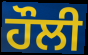
ਹੌਲੀ